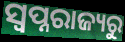
ସ୍ୱପ୍ନରାଜ୍ୟରୁ